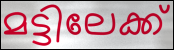
മട്ടിലേക്ക്